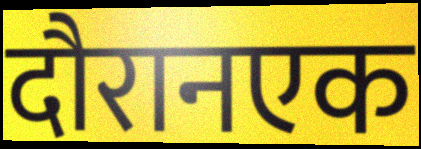
दौरानएक